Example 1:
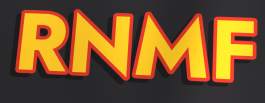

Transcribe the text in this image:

RNMF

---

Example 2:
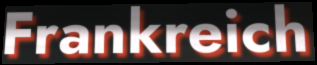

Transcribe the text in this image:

Frankreich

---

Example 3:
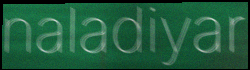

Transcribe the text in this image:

naladiyar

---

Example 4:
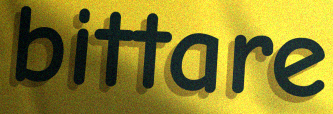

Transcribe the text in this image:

bittare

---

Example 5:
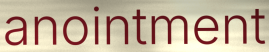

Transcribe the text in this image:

anointment